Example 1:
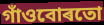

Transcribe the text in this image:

গাঁওবোৰতো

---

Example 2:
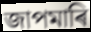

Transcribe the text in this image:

জাপমাৰি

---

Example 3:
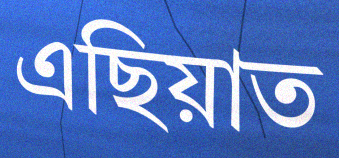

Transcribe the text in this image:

এছিয়াত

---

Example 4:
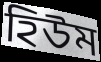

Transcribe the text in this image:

হিউম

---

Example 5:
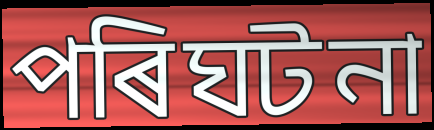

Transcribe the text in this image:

পৰিঘটনা